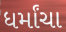
ધર્માંચા